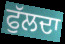
ਫੁੱਲਦਾ